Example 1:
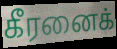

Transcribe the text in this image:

கீரனைக்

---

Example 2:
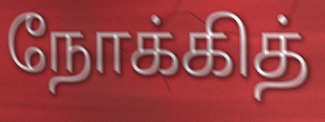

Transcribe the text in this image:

நோக்கித்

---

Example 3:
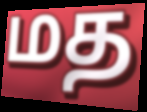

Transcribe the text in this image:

மத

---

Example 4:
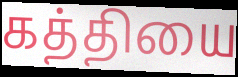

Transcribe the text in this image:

கத்தியை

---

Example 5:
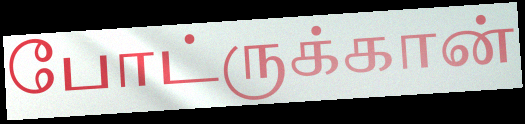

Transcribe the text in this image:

போட்ருக்கான்